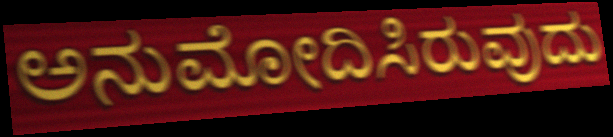
ಅನುಮೋದಿಸಿರುವುದು